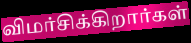
விமர்சிக்கிறார்கள்